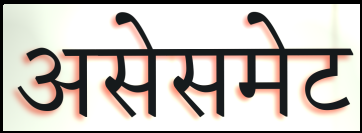
असेसमेट